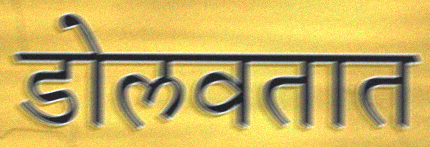
डोलवतात